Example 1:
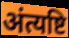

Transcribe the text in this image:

अंत्यष्टि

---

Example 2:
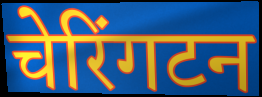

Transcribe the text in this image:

चेरिंगटन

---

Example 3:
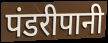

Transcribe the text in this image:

पंडरीपानी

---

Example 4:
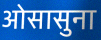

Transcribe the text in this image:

ओसासुना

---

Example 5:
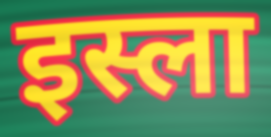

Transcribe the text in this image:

इस्ला